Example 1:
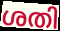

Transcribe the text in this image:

ശതി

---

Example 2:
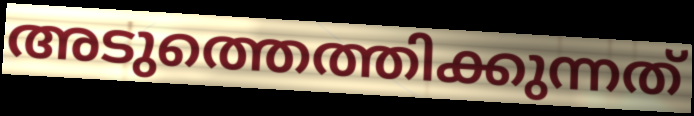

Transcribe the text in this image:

അടുത്തെത്തിക്കുന്നത്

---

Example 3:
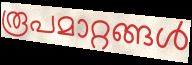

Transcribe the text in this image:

രൂപമാറ്റങ്ങൾ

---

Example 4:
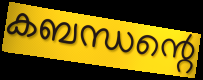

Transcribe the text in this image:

കബന്ധന്റെ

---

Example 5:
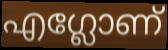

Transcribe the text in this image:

എഗ്ലോണ്